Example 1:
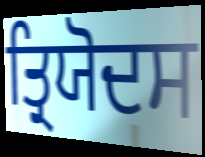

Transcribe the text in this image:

ਤ੍ਰਿਯੋਦਸ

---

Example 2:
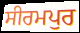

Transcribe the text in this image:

ਸੀਰਮਪੁਰ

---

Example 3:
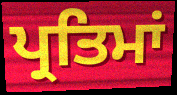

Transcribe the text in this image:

ਪ੍ਰਤਿਮਾਂ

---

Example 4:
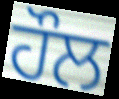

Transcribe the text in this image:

ਹੌਲ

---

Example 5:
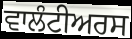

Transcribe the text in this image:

ਵਾਲੰਟੀਅਰਸ